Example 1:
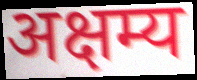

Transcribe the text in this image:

अक्षम्य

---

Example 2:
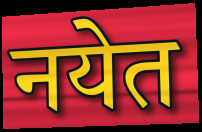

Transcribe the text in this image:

नयेत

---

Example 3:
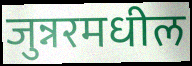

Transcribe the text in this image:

जुन्नरमधील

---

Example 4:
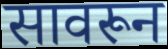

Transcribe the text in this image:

सावरून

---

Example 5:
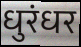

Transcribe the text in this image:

धुरंधर